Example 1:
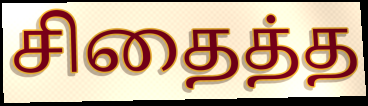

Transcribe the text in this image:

சிதைத்த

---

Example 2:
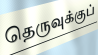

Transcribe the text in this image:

தெருவுக்குப்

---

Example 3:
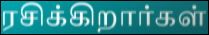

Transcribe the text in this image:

ரசிக்கிறார்கள்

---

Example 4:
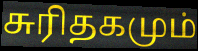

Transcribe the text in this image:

சுரிதகமும்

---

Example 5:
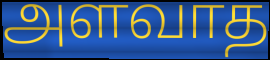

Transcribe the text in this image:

அளவாத